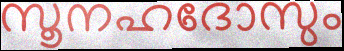
സൂനഹദോസും